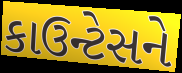
કાઉન્ટેસને